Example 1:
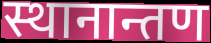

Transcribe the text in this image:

स्थानान्तण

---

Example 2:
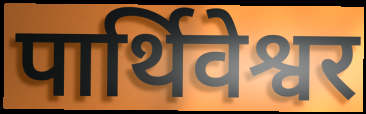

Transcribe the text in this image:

पार्थिवेश्वर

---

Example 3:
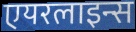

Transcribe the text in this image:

एयरलाइन्स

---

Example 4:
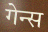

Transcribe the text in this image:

गेन्स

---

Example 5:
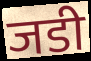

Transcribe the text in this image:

जडी